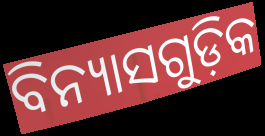
ବିନ୍ୟାସଗୁଡ଼ିକ